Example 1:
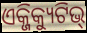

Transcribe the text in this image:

ଏକ୍ଜିକ୍ୟୁଟିଭ୍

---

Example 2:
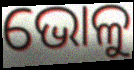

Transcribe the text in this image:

ଭୋଳୁ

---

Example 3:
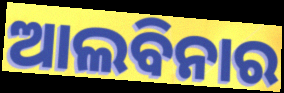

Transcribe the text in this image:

ଆଲବିନାର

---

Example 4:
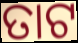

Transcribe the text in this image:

ତାଟ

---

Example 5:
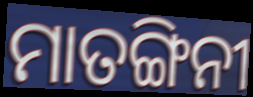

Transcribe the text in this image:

ମାତଙ୍ଗିନୀ